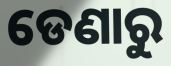
ଡେଣାରୁ